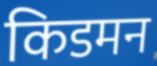
किडमन